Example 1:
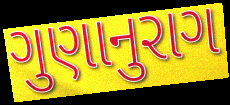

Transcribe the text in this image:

ગુણાનુરાગ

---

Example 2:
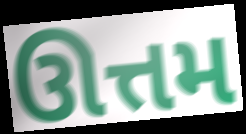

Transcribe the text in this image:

ઊત્તમ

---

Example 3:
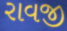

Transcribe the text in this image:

રાવજી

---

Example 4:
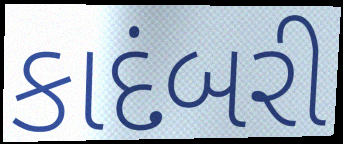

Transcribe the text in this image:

કાદંબરી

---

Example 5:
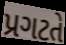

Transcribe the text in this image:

પ્રગટતે